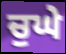
ਚੁਘੇ